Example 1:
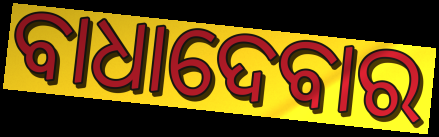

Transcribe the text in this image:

ବାଧାଦେବାର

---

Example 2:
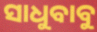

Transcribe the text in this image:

ସାଧୁବାବୁ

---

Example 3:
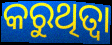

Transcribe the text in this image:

କରୁଥିତ୍ବା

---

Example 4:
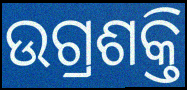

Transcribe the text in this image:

ଉଗ୍ରଶକ୍ତି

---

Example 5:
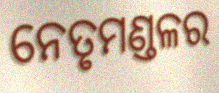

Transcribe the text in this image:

ନେତୃମଣ୍ଡଳର